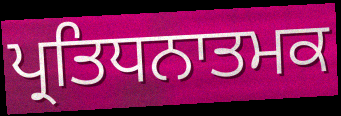
ਪ੍ਰਤਿਧਨਾਤਮਕ